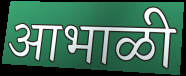
आभाळी